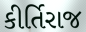
કીર્તિરાજ